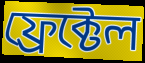
ফ্ৰেক্টেল